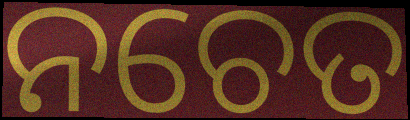
ନଚେତ